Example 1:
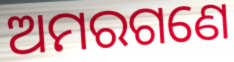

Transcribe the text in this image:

ଅମରଗଣେ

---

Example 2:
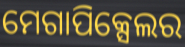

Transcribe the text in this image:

ମେଗାପିକ୍ସେଲର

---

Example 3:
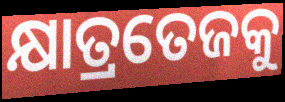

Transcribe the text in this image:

କ୍ଷାତ୍ରତେଜକୁ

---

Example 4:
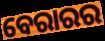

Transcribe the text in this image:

ବେରାରର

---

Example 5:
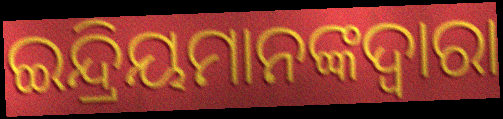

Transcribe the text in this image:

ଇନ୍ଦ୍ରିୟମାନଙ୍କଦ୍ୱାରା